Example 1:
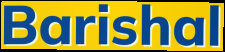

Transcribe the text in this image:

Barishal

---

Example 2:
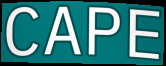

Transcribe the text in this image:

CAPE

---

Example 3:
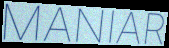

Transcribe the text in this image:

MANIAR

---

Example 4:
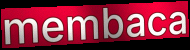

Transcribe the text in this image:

membaca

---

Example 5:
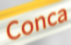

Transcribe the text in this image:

Conca